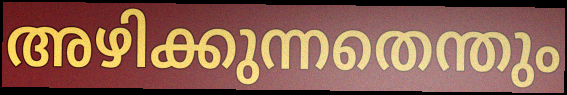
അഴിക്കുന്നതെന്തും